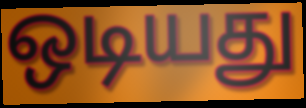
ஒடியது